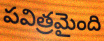
పవిత్రమైంది